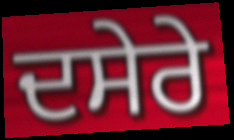
ਦਸੇਰੇ